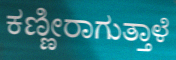
ಕಣ್ಣೀರಾಗುತ್ತಾಳೆ